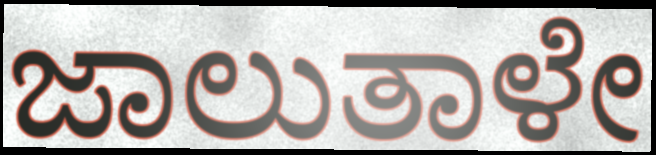
ಜಾಲುತಾಳೇ